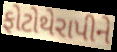
ફોટોથેરાપીને